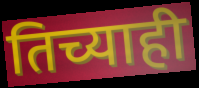
तिच्याही